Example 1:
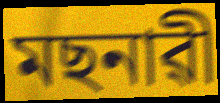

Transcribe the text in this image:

মছনাৱী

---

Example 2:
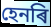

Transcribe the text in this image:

হেনৰি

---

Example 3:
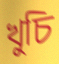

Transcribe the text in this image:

খুচি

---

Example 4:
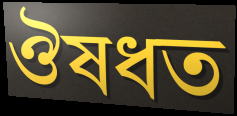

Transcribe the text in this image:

ঔষধত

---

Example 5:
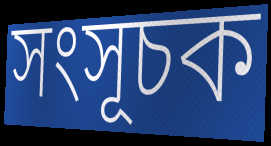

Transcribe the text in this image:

সংসূচক